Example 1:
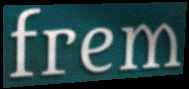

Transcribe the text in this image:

frem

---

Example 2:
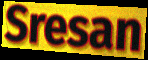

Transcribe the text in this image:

Sresan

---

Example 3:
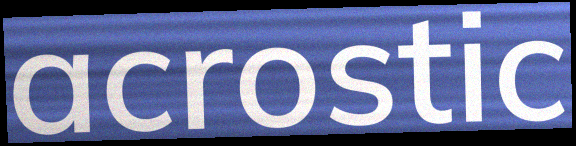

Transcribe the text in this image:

acrostic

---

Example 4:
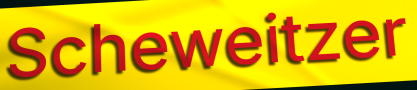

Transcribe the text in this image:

Scheweitzer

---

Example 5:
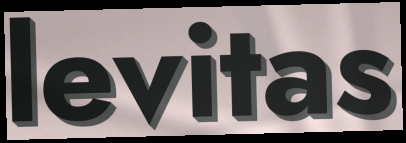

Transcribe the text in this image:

levitas